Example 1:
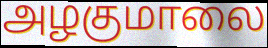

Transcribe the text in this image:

அழகுமாலை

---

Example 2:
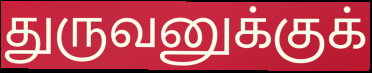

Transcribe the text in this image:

துருவனுக்குக்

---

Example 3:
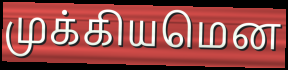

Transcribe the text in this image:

முக்கியமென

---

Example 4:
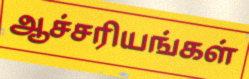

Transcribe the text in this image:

ஆச்சரியங்கள்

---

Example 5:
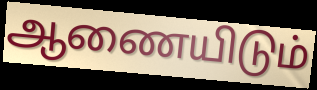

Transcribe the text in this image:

ஆணையிடும்